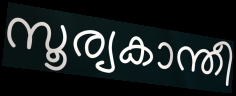
സൂര്യകാന്തീ